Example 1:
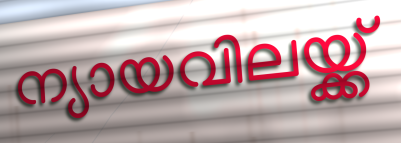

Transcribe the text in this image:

ന്യായവിലയ്ക്ക്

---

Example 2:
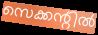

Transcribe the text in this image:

സെക്കന്റിൽ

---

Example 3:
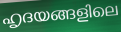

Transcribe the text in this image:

ഹൃദയങ്ങളിലെ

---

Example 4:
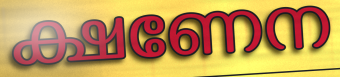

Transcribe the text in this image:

ക്ഷണേന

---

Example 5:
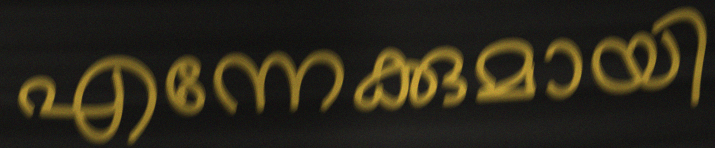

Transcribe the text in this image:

എന്നേക്കുമായി